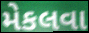
મેકલવા